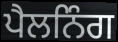
ਪੈਲਨਿੰਗ